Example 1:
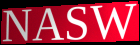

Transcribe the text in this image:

NASW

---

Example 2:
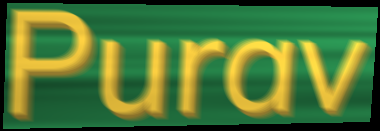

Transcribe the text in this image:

Purav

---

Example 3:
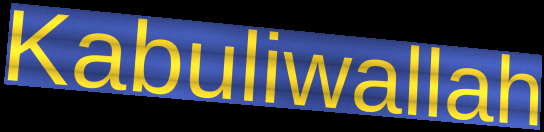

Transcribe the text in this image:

Kabuliwallah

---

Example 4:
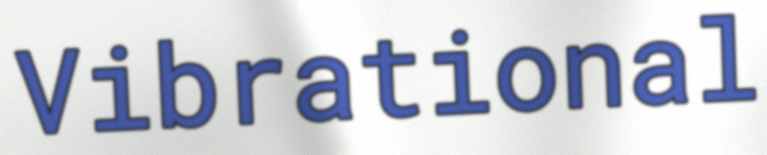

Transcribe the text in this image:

Vibrational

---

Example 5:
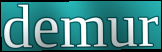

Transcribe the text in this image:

demur